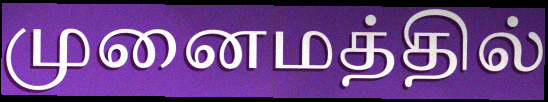
முனைமத்தில்